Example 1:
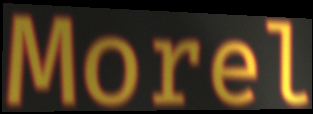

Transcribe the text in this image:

Morel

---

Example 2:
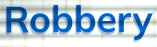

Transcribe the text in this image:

Robbery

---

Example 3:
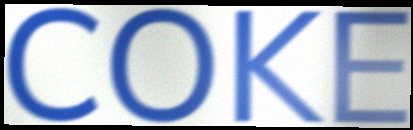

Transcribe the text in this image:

COKE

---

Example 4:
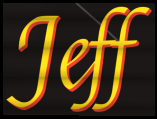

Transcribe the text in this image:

Jeff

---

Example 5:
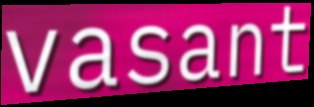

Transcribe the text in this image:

vasant